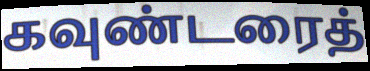
கவுண்டரைத்